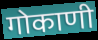
गोकाणी